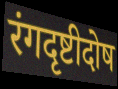
रंगदृष्टीदोष